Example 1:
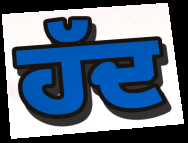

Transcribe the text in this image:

ਹੱਦ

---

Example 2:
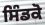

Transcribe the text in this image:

ਸਿੰਡਕੋ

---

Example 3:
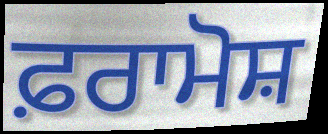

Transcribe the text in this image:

ਫ਼ਰਾਮੋਸ਼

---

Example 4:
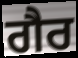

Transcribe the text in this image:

ਗੈਰ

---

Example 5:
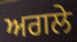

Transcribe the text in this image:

ਅਗਲੇ